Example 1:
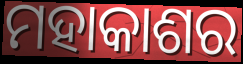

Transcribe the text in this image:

ମହାକାଶର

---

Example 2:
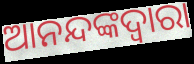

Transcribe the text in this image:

ଆନନ୍ଦଙ୍କଦ୍ୱାରା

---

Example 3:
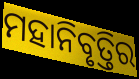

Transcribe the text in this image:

ମହାନିବୃତ୍ତିର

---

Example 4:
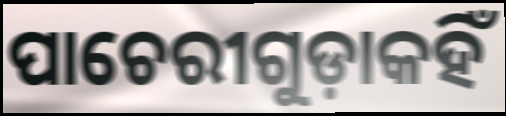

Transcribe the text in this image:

ପାଚେରୀଗୁଡ଼ାକହିଁ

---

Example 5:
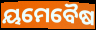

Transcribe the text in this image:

ୟମେବୈଷ